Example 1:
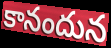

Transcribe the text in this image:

కానందున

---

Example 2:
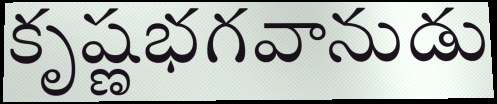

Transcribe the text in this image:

కృష్ణభగవానుడు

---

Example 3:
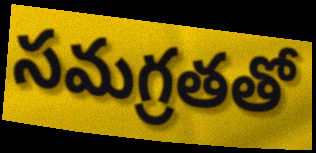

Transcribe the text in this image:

సమగ్రతతో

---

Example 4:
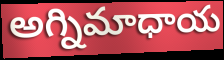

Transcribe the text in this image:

అగ్నిమాధాయ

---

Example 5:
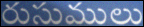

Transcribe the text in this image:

రుసుములు